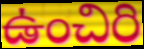
ఉంచిరి